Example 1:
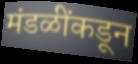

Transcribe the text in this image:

मंडळींकडून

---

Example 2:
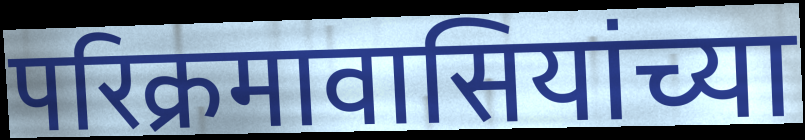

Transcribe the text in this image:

परिक्रमावासियांच्या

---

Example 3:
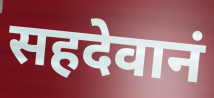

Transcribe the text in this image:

सहदेवानं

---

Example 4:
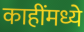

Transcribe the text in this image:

काहींमध्ये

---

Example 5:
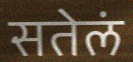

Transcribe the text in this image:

सतेलं